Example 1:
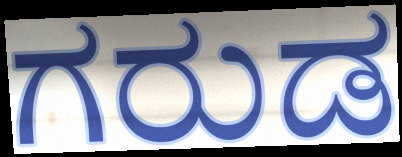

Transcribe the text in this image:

ಗರುಡ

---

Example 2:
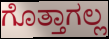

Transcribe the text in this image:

ಗೊತ್ತಾಗಲ್ಲ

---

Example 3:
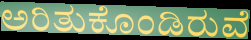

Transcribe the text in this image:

ಅರಿತುಕೊಂಡಿರುವೆ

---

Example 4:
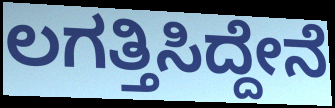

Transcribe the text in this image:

ಲಗತ್ತಿಸಿದ್ದೇನೆ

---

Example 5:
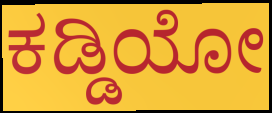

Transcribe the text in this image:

ಕಡ್ಡಿಯೋ